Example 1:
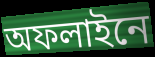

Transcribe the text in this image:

অফলাইনে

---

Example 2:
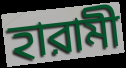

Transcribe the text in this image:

হারামী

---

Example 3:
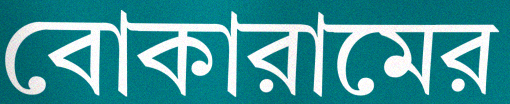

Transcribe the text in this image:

বোকারামের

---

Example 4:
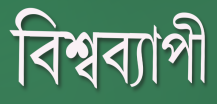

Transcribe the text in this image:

বিশ্বব্যাপী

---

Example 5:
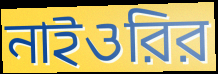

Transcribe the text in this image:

নাইওরির